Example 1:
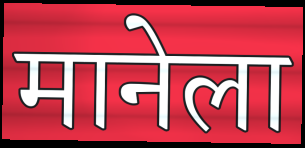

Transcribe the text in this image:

मानेला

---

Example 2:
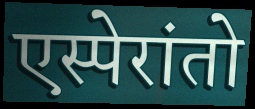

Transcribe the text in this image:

एस्पेरांतो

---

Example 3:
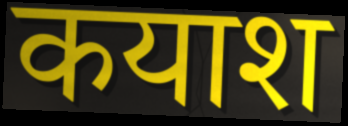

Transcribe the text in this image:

कयाश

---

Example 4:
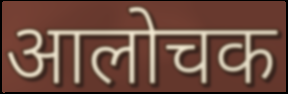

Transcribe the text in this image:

आलोचक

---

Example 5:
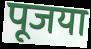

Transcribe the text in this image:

पूजया